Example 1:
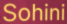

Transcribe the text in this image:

Sohini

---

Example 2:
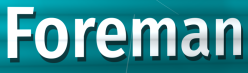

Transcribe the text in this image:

Foreman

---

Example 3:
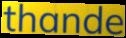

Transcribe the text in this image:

thande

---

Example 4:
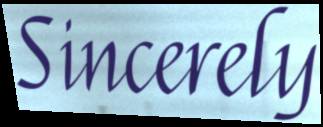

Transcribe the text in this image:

Sincerely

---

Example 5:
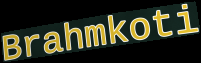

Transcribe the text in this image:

Brahmkoti